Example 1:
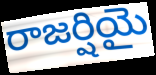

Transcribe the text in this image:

రాజర్షియై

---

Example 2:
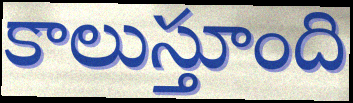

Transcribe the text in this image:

కాలుస్తూంది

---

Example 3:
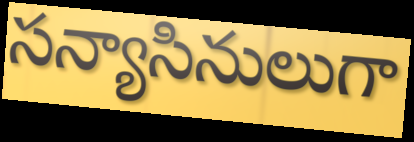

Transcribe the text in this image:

సన్యాసినులుగా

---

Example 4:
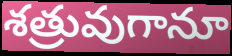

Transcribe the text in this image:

శత్రువుగానూ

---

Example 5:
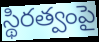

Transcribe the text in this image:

స్థిరత్వంపై